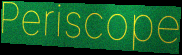
Periscope